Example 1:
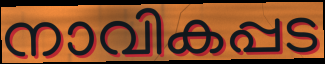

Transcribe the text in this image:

നാവികപ്പട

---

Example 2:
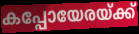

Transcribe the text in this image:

കപ്പോയേരയ്ക്ക്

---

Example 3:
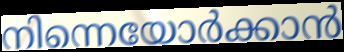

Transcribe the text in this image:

നിന്നെയോർക്കാൻ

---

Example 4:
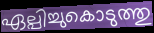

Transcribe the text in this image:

ഏല്പിച്ചുകൊടുത്തു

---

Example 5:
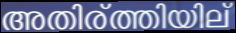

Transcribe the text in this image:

അതിര്ത്തിയില്